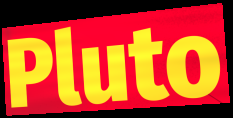
Pluto